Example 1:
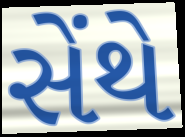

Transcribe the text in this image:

સેંથે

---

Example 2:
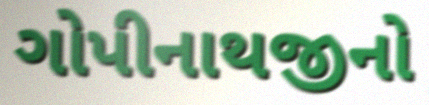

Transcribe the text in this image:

ગોપીનાથજીનો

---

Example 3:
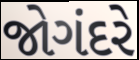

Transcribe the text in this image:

જોગંદરે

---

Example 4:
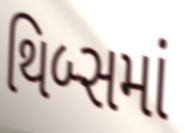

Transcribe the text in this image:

થિબ્સમાં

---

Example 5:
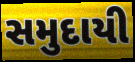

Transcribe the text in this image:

સમુદાયી